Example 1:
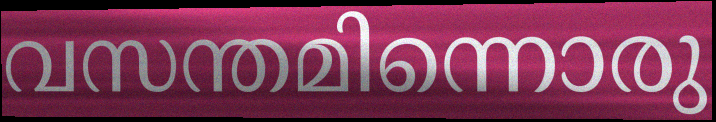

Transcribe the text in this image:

വസന്തമിന്നൊരു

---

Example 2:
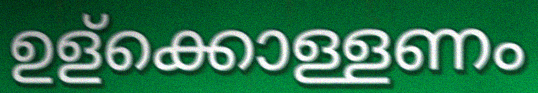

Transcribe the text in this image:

ഉള്ക്കൊള്ളണം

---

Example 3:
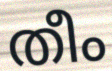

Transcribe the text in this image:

തീം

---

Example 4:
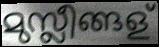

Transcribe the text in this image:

മുസ്ലീങ്ങള്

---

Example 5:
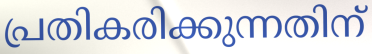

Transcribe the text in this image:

പ്രതികരിക്കുന്നതിന്